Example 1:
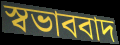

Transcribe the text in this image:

স্বভাববাদ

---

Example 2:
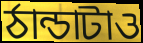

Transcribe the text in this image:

ঠান্ডাটাও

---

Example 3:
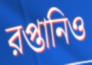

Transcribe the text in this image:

রপ্তানিও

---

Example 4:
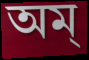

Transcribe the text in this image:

অম্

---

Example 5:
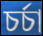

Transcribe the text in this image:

চর্চা